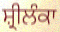
ਸ਼੍ਰੀਲੰਕਾ